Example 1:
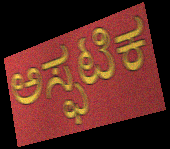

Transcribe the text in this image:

ಅಸ್ಫಟಿಕ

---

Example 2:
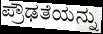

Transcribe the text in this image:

ಪ್ರೌಢತೆಯನ್ನು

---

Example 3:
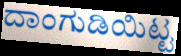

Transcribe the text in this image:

ದಾಂಗುಡಿಯಿಟ್ಟ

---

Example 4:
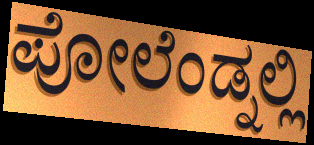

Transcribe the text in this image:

ಪೋಲೆಂಡ್ನಲ್ಲಿ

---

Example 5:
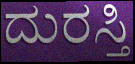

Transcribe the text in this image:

ದುರಸ್ತಿ